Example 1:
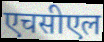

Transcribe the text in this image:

एचसीएल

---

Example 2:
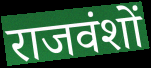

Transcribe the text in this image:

राजवंशों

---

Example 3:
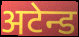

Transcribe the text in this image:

अटेन्ड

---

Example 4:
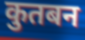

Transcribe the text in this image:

कुतबन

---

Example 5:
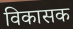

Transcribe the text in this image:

विकासक